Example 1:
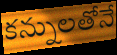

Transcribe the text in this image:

కన్నులతోనే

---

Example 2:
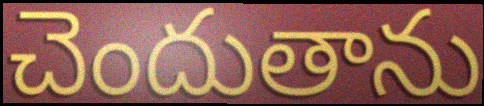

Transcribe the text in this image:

చెందుతాను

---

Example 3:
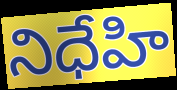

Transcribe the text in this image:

నిధేహి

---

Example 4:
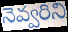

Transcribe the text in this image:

నెవ్వరిని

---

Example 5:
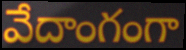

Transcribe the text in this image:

వేదాంగంగా